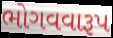
ભોગવવારૂપ